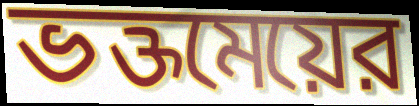
ভক্তমেয়ের